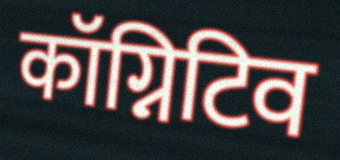
कॉग्निटिव